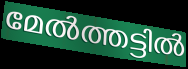
മേൽത്തട്ടിൽ